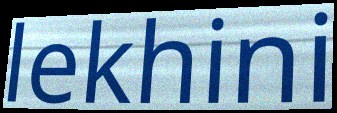
lekhini